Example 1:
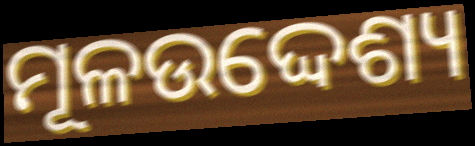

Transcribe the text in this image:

ମୂଳଉଦ୍ଦେଶ୍ୟ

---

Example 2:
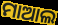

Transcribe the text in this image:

ମାଆଲ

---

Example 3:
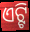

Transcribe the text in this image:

ଏଟ୍ଟି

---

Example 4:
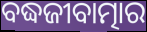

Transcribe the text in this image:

ବଦ୍ଧଜୀବାତ୍ମାର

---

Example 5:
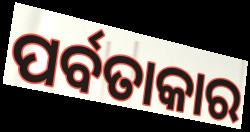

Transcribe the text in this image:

ପର୍ବତାକାର